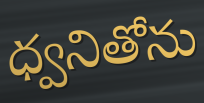
ధ్వనితోను